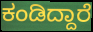
ಕಂಡಿದ್ದಾರೆ